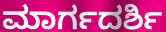
ಮಾರ್ಗದರ್ಶಿ